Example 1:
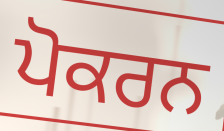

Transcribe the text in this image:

ਪੋਕਰਨ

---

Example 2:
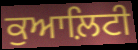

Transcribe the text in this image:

ਕੁਆਲ਼ਿਟੀ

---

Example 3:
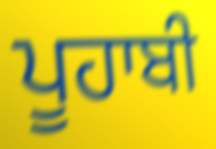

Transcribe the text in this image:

ਪੂਹਾਬੀ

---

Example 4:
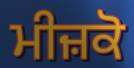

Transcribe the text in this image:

ਮੀਜ਼ਕੋ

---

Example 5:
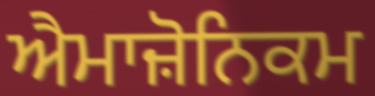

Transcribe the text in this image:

ਐਮਾਜ਼ੋਨਿਕਮ